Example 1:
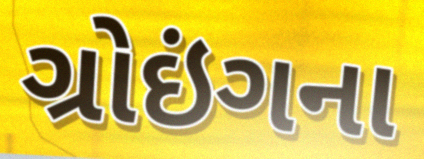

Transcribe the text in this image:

ગ્રોઇંગના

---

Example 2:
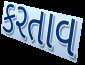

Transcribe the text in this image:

કરતાવ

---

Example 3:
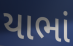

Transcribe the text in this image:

યાભાં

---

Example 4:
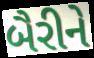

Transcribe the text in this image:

બૈરીને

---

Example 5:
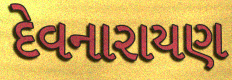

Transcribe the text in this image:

દેવનારાયણ